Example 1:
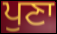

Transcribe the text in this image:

ਪੁਣਾ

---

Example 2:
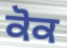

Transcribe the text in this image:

ਕੋਕ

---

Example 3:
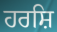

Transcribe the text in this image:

ਹਰਸ਼ਿ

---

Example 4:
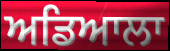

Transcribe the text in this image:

ਅਡਿਆਲਾ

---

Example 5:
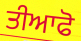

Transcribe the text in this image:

ਤੀਆਫੋ